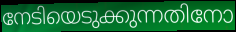
നേടിയെടുക്കുന്നതിനോ